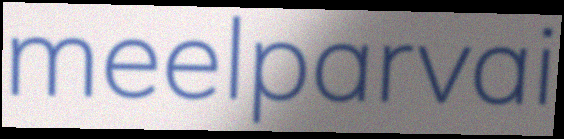
meelparvai